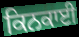
ਕਿਨਕਾਈ